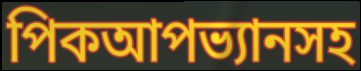
পিকআপভ্যানসহ